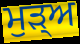
ਮੁਡ਼੍ਅ